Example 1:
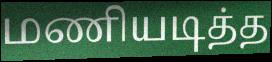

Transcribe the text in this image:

மணியடித்த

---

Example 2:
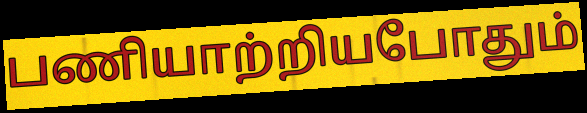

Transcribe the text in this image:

பணியாற்றியபோதும்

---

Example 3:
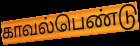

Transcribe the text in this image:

காவல்பெண்டு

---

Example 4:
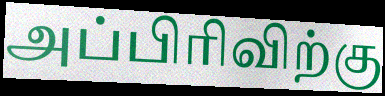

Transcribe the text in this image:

அப்பிரிவிற்கு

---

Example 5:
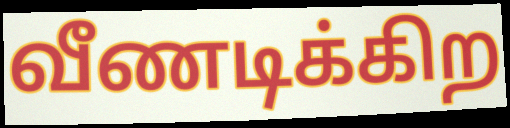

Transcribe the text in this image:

வீணடிக்கிற